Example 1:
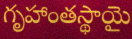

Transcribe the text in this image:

గృహాంతస్థాయై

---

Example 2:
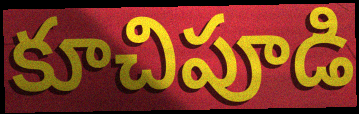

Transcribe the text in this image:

కూచిపూడి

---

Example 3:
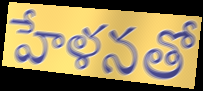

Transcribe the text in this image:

హేళనతో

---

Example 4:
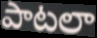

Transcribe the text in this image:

పాటలా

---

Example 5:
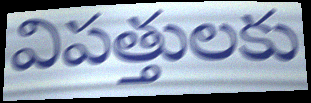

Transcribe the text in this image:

విపత్తులకు